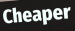
Cheaper